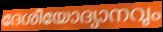
ദേശീയോദ്യാനവും